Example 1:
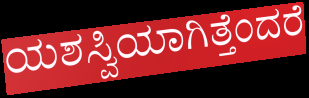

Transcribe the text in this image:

ಯಶಸ್ವಿಯಾಗಿತ್ತೆಂದರೆ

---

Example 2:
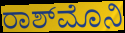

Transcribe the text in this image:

ರಾಶ್‌ಮೊನಿ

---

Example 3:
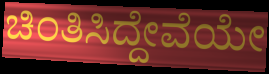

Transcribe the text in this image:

ಚಿಂತಿಸಿದ್ದೇವೆಯೇ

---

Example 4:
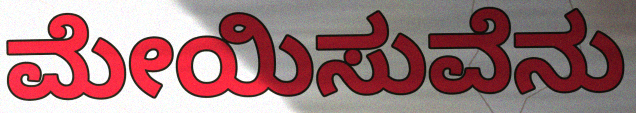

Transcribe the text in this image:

ಮೇಯಿಸುವೆನು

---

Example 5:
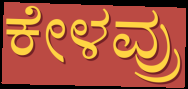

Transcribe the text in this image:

ಕೇಳವ್ರು